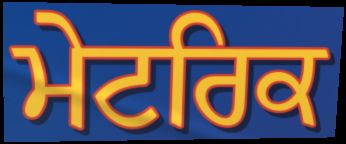
ਮੇਟਰਿਕ